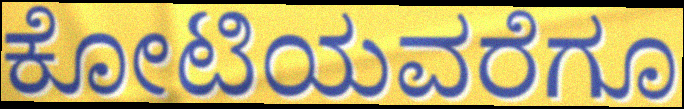
ಕೋಟಿಯವರೆಗೂ